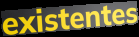
existentes